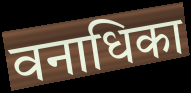
वनाधिका